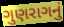
ગુણરાગનું